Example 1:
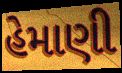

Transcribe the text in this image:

હેમાણી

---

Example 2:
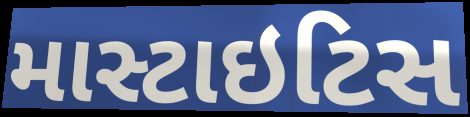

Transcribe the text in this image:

માસ્ટાઇટિસ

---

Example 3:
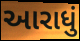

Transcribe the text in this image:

આરાધું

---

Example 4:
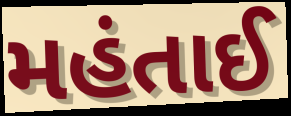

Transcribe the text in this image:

મહંતાઈ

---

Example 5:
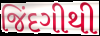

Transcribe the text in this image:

જિંદગીથી